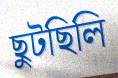
ছুটছিলি